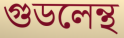
গুডলেন্থ